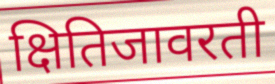
क्षितिजावरती